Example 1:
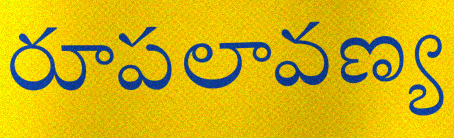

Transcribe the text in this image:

రూపలావణ్య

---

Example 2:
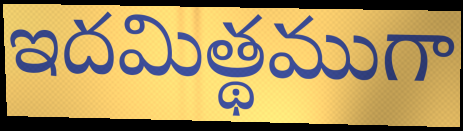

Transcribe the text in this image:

ఇదమిత్థముగా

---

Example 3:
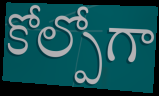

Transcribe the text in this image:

కోల్పోగా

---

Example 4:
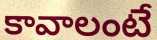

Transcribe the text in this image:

కావాలంటే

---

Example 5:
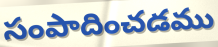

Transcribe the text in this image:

సంపాదించడము